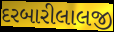
દરબારીલાલજી